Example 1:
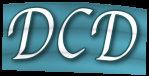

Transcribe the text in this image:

DCD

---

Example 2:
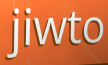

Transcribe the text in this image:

jiwto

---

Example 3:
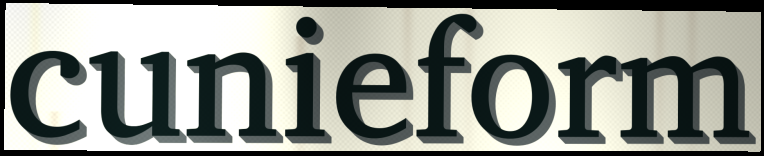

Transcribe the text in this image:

cunieform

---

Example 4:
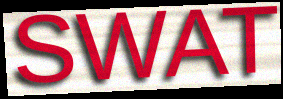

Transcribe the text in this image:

SWAT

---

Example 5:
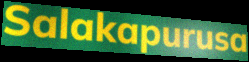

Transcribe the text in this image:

Salakapurusa